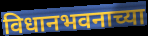
विधानभवनाच्या